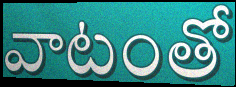
వాటంతో